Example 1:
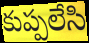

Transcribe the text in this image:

కుప్పలేసి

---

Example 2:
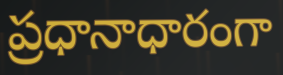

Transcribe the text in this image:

ప్రధానాధారంగా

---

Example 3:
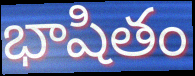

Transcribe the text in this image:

భాషితం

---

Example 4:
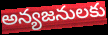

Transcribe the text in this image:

అన్యజనులకు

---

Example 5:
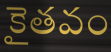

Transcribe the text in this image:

కైతవం